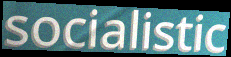
socialistic